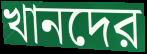
খানদের